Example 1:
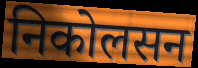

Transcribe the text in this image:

निकोलसन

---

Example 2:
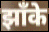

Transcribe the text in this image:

झाँके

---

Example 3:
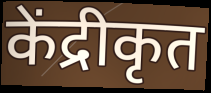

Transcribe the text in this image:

केंद्रीकृत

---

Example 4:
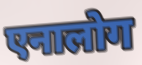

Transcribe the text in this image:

एनालोग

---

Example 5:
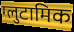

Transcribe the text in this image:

ग्लुटामिक